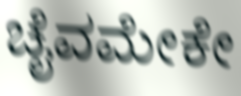
ಚೈವಮೇಕೇ